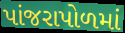
પાંજરાપોળમાં